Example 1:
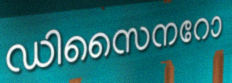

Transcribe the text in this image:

ഡിസൈനറോ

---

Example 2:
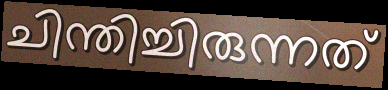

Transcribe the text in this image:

ചിന്തിച്ചിരുന്നത്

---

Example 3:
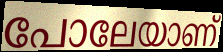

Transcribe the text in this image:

പോലേയാണ്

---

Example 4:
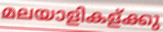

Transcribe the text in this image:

മലയാളികള്ക്കു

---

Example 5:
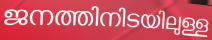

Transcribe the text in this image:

ജനത്തിനിടയിലുള്ള